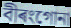
বীৰংগোনা